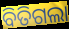
ବିତିଗଲା